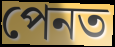
পেনত